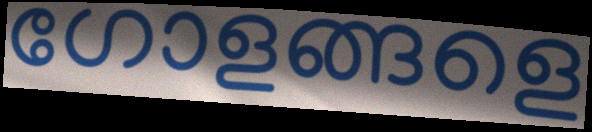
ഗോളങ്ങളെ